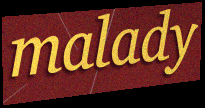
malady